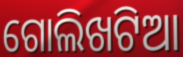
ଗୋଲିଖଟିଆ